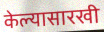
केल्यासारखी